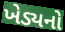
ખેડ્યનો